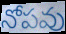
నోపవు